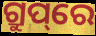
ଗ୍ରୁପ୍‌ରେ